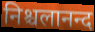
निश्चलानन्द